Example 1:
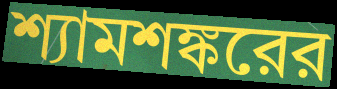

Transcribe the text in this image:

শ্যামশঙ্করের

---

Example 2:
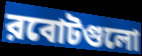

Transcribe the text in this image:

রবোটগুলো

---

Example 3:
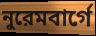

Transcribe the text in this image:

নুরেমবার্গে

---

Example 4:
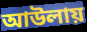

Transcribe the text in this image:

আউলায়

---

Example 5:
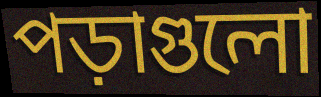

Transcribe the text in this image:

পড়াগুলো